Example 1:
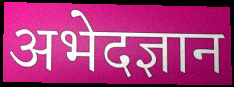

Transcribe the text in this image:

अभेदज्ञान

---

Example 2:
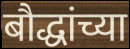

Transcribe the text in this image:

बौद्धांच्या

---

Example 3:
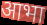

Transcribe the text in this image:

आभा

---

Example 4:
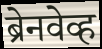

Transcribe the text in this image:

ब्रेनवेव्ह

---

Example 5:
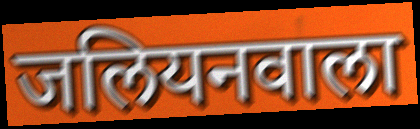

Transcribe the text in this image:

जलियनवाला